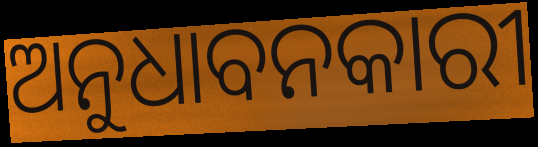
ଅନୁଧାବନକାରୀ